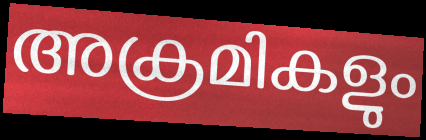
അക്രമികളും